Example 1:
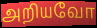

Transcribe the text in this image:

அறியவோ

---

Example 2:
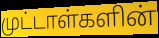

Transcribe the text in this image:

முட்டாள்களின்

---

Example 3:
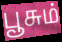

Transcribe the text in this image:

பூசும்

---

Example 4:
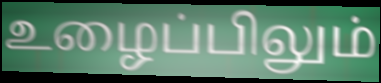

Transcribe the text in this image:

உழைப்பிலும்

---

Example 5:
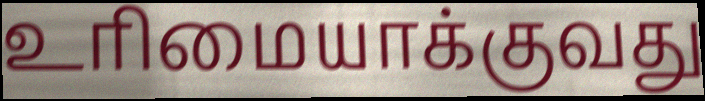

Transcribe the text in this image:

உரிமையாக்குவது